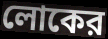
লোকের